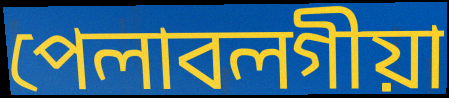
পেলাবলগীয়া